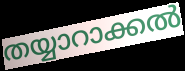
തയ്യാറാക്കൽ